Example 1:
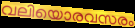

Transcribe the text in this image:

വലിയൊരവസരം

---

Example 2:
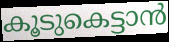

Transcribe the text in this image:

കൂടുകെട്ടാൻ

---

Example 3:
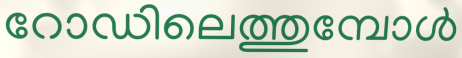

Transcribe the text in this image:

റോഡിലെത്തുമ്പോൾ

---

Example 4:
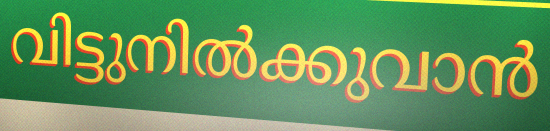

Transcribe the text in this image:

വിട്ടുനിൽക്കുവാൻ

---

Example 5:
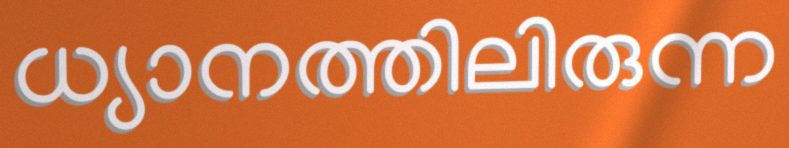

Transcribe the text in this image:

ധ്യാനത്തിലിരുന്ന